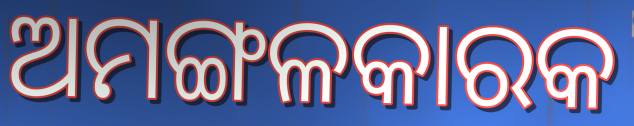
ଅମଙ୍ଗଳକାରକ